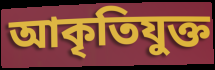
আকৃতিযুক্ত